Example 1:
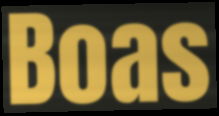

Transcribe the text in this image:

Boas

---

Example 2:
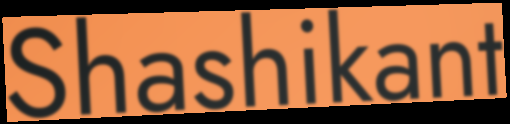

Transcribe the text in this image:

Shashikant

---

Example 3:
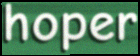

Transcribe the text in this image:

hoper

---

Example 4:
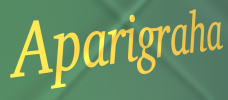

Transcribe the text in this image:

Aparigraha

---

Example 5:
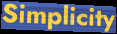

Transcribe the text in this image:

Simplicity